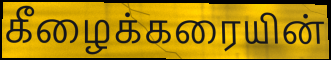
கீழைக்கரையின்